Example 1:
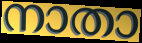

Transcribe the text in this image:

നാതാ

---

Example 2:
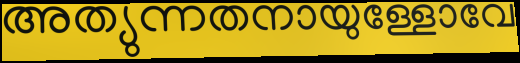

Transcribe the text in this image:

അത്യുന്നതനായുള്ളോവേ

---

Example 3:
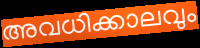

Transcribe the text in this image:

അവധിക്കാലവും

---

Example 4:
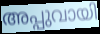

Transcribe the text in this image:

അപ്പുവായി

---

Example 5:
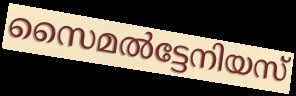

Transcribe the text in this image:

സൈമൽട്ടേനിയസ്